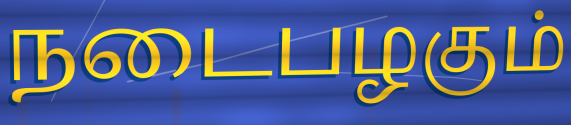
நடைபழகும்